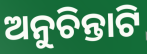
ଅନୁଚିନ୍ତାଟି